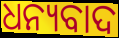
ଧନ୍ଯବାଦ